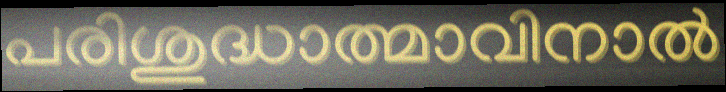
പരിശുദ്ധാത്മാവിനാൽ